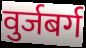
वुर्जबर्ग